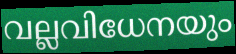
വല്ലവിധേനയും